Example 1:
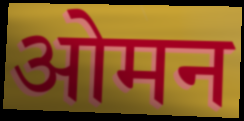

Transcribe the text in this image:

ओमन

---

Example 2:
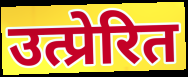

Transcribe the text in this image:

उत्प्रेरित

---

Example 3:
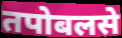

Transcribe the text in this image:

तपोबलसे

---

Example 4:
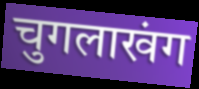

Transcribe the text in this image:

चुगलाखंग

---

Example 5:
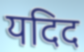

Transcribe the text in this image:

यदिद